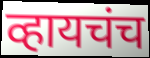
व्हायचंच